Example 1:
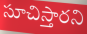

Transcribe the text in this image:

సూచిస్తారని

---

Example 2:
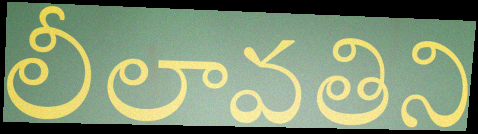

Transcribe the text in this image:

లీలావతిని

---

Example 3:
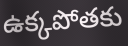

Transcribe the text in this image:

ఉక్కపోతకు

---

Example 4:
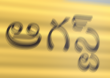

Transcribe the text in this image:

ఆగస్ట్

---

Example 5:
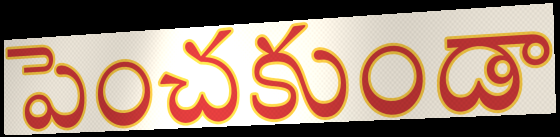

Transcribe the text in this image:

పెంచకుండా